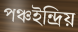
পঞ্চইন্দ্রিয়